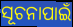
ସୂଚନାପାଇଁ